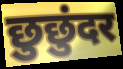
छुछुंदर